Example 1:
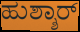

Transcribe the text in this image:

ಹುಶ್ಶಾರ್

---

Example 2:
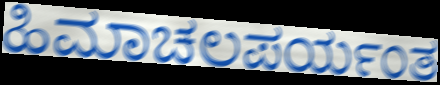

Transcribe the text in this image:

ಹಿಮಾಚಲಪರ್ಯಂತ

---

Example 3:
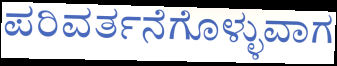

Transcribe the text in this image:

ಪರಿವರ್ತನೆಗೊಳ್ಳುವಾಗ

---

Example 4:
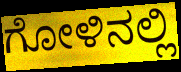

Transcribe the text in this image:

ಗೋಳಿನಲ್ಲಿ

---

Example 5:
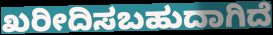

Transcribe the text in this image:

ಖರೀದಿಸಬಹುದಾಗಿದೆ